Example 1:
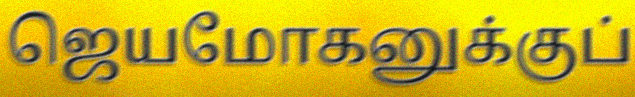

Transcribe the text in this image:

ஜெயமோகனுக்குப்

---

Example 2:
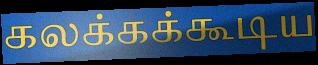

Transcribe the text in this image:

கலக்கக்கூடிய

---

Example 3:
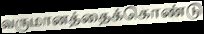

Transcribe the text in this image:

வருமானத்தைக்கொண்டு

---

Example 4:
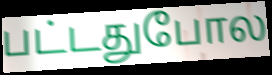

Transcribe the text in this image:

பட்டதுபோல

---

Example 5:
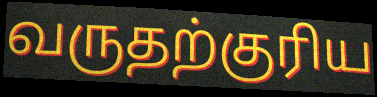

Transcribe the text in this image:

வருதற்குரிய